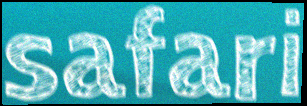
safari